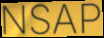
NSAP